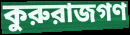
কুরুরাজগণ